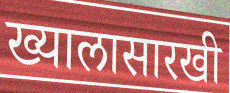
ख्यालासारखी